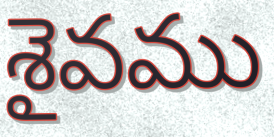
శైవము